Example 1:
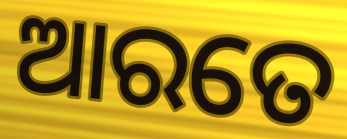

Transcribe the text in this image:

ଆରତେ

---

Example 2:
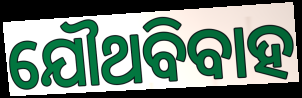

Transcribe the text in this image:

ଯୌଥବିବାହ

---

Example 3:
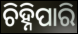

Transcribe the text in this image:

ଚିହ୍ନିପାରି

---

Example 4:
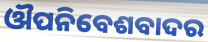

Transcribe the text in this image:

ଔପନିବେଶବାଦର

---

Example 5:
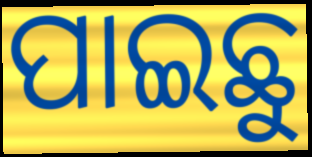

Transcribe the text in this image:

ପାଇଛୁ